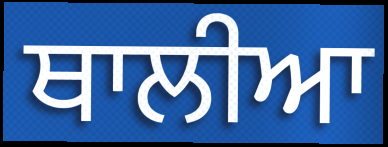
ਥਾਲੀਆ